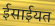
ईसाईयत